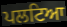
ਪਲਟਿਆ